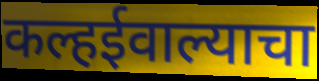
कल्हईवाल्याचा